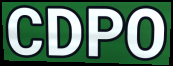
CDPO